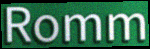
Romm